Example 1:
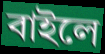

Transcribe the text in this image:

বাইলে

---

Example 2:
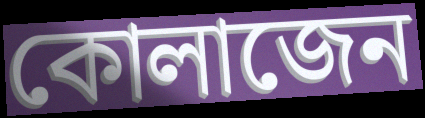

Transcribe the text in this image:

কোলাজেন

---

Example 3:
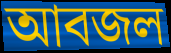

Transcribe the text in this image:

আবজল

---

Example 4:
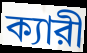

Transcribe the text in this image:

ক্যারী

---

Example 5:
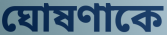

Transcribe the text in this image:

ঘোষণাকে